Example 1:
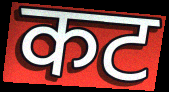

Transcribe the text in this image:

कट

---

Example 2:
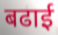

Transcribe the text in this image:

बढाई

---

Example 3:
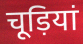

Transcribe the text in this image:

चूड़ियां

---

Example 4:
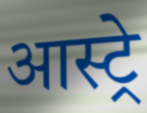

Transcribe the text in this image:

आस्ट्रे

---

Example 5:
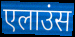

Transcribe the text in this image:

एलाउंस